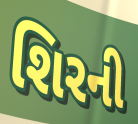
શિરની